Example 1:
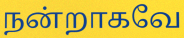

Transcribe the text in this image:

நன்றாகவே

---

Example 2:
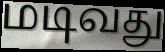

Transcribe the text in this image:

மடிவது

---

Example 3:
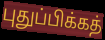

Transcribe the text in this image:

புதுப்பிக்கத்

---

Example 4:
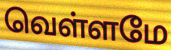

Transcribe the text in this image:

வெள்ளமே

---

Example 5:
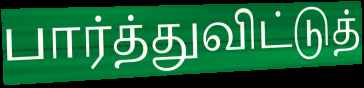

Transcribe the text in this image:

பார்த்துவிட்டுத்